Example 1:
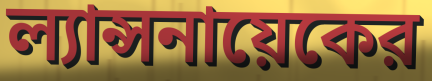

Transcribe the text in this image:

ল্যান্সনায়েকের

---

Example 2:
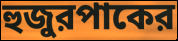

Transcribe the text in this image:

হুজুরপাকের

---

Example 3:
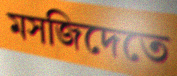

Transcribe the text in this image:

মসজিদেতে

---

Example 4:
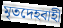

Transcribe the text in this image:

মৃতদেহবাহী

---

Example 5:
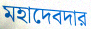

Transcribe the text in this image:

মহাদেবদার